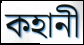
কহানী